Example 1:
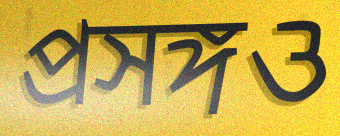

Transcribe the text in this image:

প্রসঙ্গও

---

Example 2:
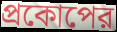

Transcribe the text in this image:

প্রকোপের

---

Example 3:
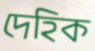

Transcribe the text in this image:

দেহিক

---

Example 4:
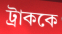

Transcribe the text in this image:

ট্রাককে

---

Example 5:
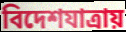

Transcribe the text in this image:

বিদেশযাত্রায়